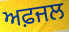
ਅਫ਼ਜਲ